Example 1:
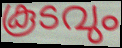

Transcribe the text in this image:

കൂടവും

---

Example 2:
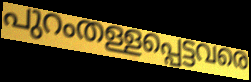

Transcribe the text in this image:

പുറംതള്ളപ്പെട്ടവരെ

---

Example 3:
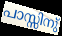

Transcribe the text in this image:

പാസ്സിനു്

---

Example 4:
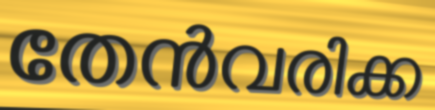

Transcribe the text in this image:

തേൻവരിക്ക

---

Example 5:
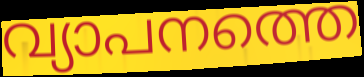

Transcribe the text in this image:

വ്യാപനത്തെ